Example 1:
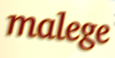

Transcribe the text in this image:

malege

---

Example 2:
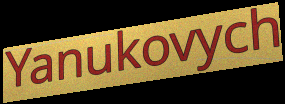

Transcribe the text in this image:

Yanukovych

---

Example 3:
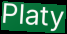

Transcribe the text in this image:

Platy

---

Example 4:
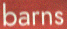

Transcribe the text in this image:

barns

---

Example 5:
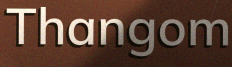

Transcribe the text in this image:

Thangom